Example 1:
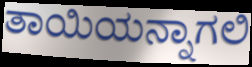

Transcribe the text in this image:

ತಾಯಿಯನ್ನಾಗಲಿ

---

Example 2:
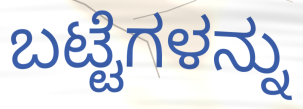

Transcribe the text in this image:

ಬಟ್ಟೆಗಳನ್ನು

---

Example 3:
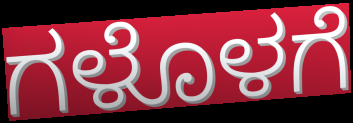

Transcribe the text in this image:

ಗಳೊಳಗೆ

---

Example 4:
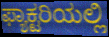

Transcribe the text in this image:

ಫ್ಯಾಕ್ಟರಿಯಲ್ಲಿ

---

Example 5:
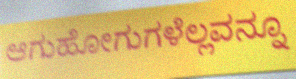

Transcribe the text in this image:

ಆಗುಹೋಗುಗಳೆಲ್ಲವನ್ನೂ